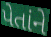
પેતાંને